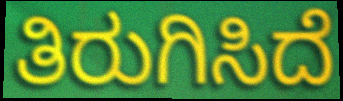
ತಿರುಗಿಸಿದೆ